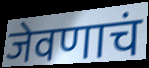
जेवणाचं